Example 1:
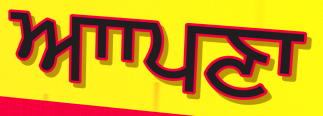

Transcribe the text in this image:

ਆਾਪਣਾ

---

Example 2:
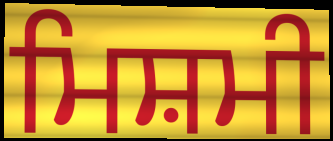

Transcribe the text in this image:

ਮਿਸ਼ਮੀ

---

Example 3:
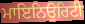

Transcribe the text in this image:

ਮਾਇਨਿਉਰਿਟੀ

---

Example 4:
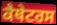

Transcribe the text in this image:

ਕੈਥੇਟਰਸ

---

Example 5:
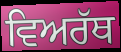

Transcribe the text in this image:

ਵਿਅਰੱਥ